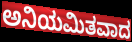
ಅನಿಯಮಿತವಾದ